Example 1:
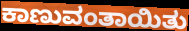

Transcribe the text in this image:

ಕಾಣುವಂತಾಯಿತು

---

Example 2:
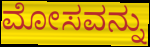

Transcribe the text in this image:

ಮೋಸವನ್ನು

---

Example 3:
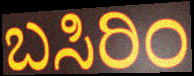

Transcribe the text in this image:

ಬಸಿರಿಂ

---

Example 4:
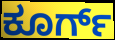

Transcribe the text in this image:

ಕೂರ್ಗ್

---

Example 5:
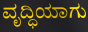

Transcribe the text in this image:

ವೃದ್ಧಿಯಾಗು